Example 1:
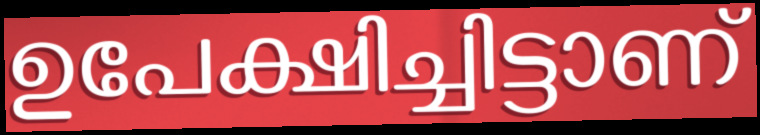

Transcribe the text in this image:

ഉപേക്ഷിച്ചിട്ടാണ്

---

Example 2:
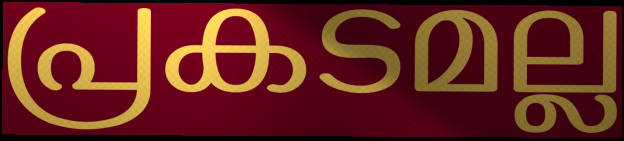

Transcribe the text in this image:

പ്രകടമല്ല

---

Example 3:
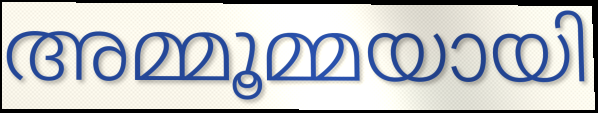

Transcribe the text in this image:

അമ്മൂമ്മയായി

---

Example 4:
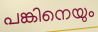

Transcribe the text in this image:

പങ്കിനെയും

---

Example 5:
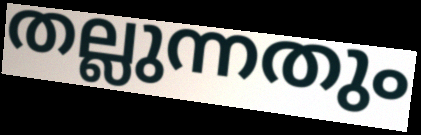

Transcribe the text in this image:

തല്ലുന്നതും